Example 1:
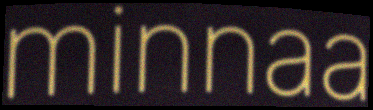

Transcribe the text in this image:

minnaa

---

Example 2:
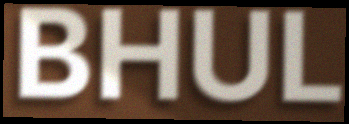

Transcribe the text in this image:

BHUL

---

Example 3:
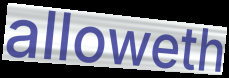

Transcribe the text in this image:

alloweth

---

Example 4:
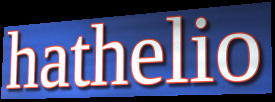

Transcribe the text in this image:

hathelio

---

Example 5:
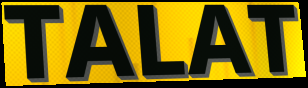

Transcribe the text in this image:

TALAT